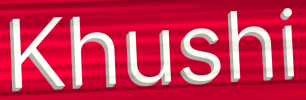
Khushi